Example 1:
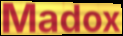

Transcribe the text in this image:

Madox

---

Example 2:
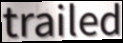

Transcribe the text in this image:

trailed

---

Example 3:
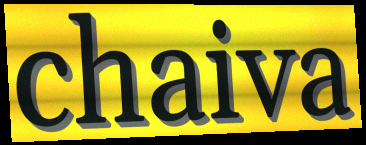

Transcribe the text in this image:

chaiva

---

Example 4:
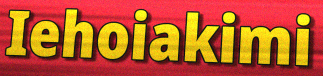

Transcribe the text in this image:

Iehoiakimi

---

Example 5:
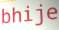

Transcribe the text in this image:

bhije